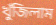
খুঁজিলাম